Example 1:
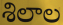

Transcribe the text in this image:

శిలాల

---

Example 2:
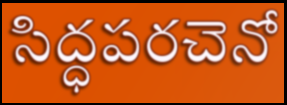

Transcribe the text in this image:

సిద్ధపరచెనో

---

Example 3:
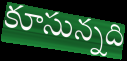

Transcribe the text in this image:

కూసున్నది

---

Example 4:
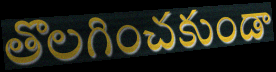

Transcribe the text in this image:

తొలగించకుండా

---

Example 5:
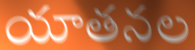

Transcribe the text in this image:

యాతనల